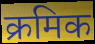
क्रमिक